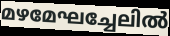
മഴമേഘച്ചേലിൽ